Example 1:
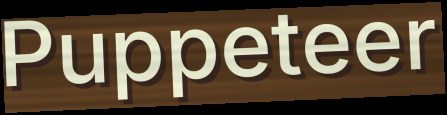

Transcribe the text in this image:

Puppeteer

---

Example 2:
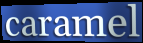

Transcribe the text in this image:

caramel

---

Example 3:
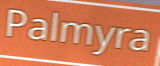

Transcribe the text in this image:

Palmyra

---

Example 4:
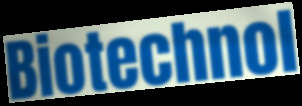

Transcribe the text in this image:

Biotechnol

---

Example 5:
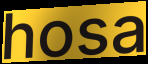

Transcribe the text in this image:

hosa